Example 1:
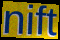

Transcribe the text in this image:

nift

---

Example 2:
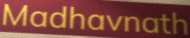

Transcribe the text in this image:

Madhavnath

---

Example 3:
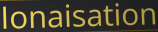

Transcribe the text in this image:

Ionaisation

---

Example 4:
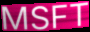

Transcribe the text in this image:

MSFT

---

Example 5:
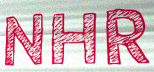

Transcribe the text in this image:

NHR